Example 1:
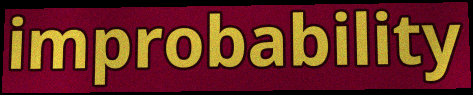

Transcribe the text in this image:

improbability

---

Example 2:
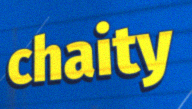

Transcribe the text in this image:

chaity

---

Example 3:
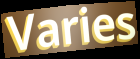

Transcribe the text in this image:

Varies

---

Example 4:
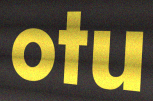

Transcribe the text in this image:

otu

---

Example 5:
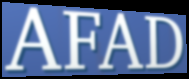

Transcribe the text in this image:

AFAD